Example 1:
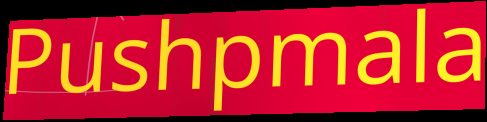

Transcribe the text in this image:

Pushpmala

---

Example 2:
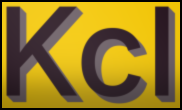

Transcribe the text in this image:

Kcl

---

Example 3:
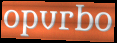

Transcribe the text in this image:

opurbo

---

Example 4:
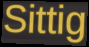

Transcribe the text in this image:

Sittig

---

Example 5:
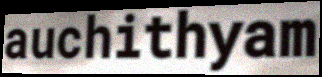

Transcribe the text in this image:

auchithyam